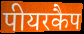
पीयरकैप